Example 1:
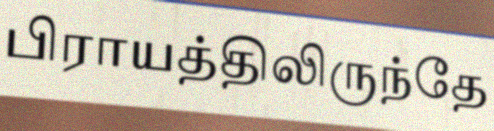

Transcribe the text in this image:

பிராயத்திலிருந்தே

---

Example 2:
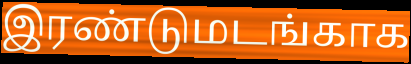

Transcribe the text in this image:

இரண்டுமடங்காக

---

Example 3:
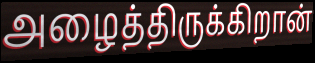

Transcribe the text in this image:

அழைத்திருக்கிறான்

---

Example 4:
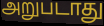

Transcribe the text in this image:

அறுபடாது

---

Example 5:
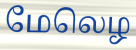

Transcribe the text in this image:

மேலெழ